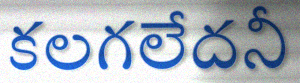
కలగలేదనీ